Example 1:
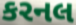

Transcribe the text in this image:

કરનલ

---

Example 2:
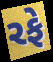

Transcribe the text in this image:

રફે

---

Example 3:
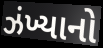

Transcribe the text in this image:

ઝંખ્યાનો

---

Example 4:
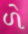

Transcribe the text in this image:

ળે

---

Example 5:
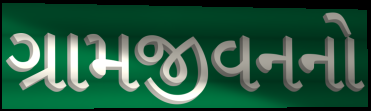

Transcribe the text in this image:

ગ્રામજીવનનો